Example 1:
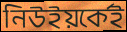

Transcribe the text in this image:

নিউইয়র্কেই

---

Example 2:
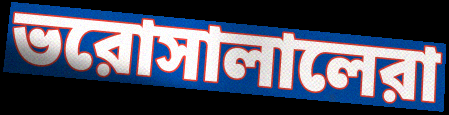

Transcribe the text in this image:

ভরোসালালেরা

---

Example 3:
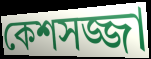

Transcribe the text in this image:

কেশসজ্জা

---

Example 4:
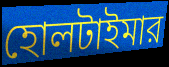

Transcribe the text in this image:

হোলটাইমার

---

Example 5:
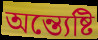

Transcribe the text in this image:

অন্ত্যেষ্টি